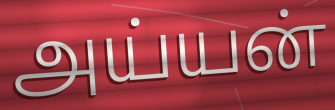
அய்யன்